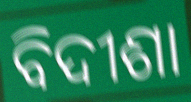
ବିଦୀଶା